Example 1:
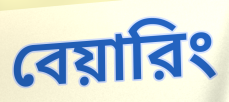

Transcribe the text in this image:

বেয়ারিং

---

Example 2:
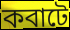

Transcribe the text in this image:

কবাটে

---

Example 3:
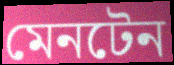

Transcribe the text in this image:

মেনটেন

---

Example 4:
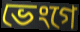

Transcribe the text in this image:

ভেংগে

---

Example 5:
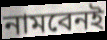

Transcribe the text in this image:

নামবেনই